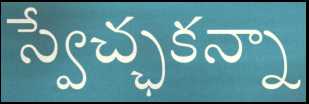
స్వేచ్ఛకన్నా